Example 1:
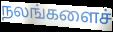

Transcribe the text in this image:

நலங்களைச்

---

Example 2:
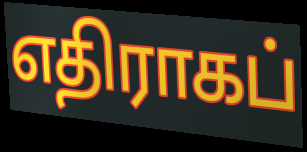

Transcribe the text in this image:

எதிராகப்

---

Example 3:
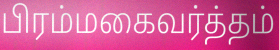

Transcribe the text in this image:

பிரம்மகைவர்த்தம்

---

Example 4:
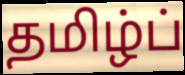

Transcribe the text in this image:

தமிழ்ப்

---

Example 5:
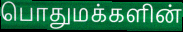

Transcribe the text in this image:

பொதுமக்களின்